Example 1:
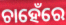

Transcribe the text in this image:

ଚାହେଁରେ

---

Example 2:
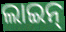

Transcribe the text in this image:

ଲାଇନ୍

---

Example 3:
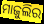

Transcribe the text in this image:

ମାଜୁଲିର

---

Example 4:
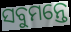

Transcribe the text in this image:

ସବୁମନ୍ତେ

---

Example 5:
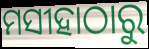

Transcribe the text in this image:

ମସୀହାଠାରୁ